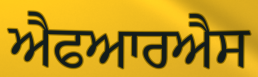
ਐਫਆਰਐਸ